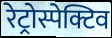
रेट्रोस्पेक्टिव